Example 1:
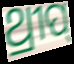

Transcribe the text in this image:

ଥ୍ରୀପ୍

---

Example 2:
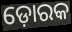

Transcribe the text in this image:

ଡ଼ୋରକ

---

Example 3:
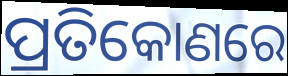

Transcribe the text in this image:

ପ୍ରତିକୋଣରେ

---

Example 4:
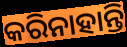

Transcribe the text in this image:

କରିନାହାନ୍ତି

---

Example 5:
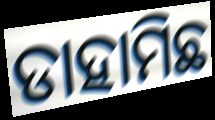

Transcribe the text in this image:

ଡାହାମିଛ